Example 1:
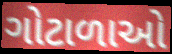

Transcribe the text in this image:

ગોટાળાઓ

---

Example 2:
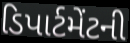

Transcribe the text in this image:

ડિપાર્ટમેંટની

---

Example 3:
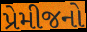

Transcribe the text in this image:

પ્રેમીજનો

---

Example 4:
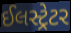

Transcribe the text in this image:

ઈલસ્ટ્રેટર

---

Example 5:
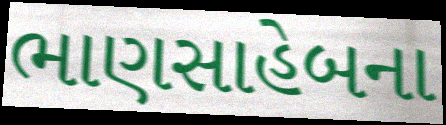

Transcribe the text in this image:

ભાણસાહેબના